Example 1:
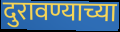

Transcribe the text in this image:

दुरावण्याच्या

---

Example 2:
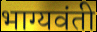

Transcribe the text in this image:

भाग्यवंती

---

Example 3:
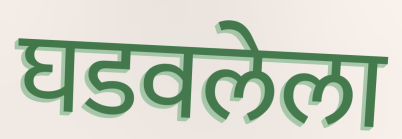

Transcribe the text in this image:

घडवलेला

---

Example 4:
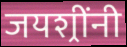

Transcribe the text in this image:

जयश्रींनी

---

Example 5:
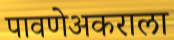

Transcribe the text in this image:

पावणेअकराला